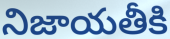
నిజాయతీకి